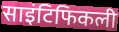
साइंटिफिकली